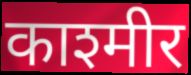
काश्मीर